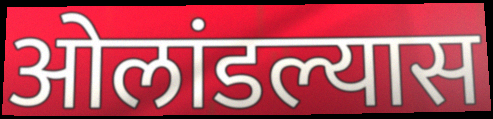
ओलांडल्यास